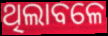
ଥିଲାବଳେ